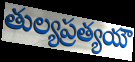
తుల్యప్రత్యయౌ